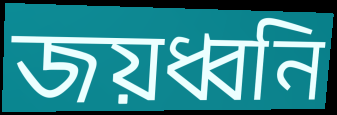
জয়ধ্বনি